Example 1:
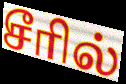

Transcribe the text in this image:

சீரில்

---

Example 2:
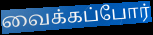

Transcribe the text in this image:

வைக்கப்போர்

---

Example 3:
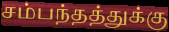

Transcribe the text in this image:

சம்பந்தத்துக்கு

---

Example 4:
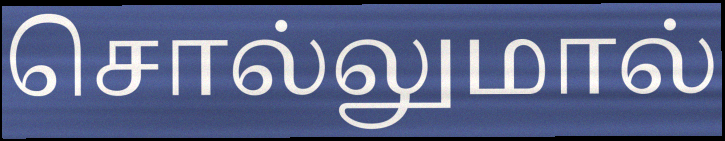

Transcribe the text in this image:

சொல்லுமால்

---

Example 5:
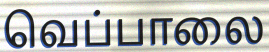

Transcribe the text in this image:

வெப்பாலை